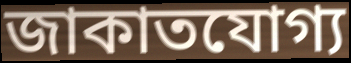
জাকাতযোগ্য